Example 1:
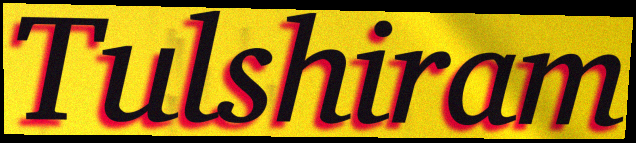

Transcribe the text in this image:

Tulshiram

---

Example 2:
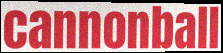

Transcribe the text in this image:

cannonball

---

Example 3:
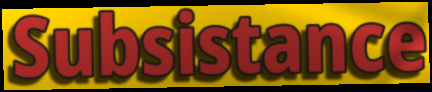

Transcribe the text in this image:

Subsistance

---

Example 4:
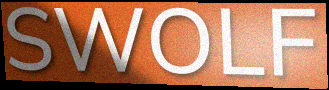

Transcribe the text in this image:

SWOLF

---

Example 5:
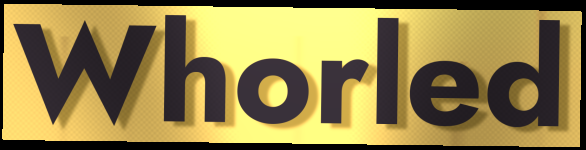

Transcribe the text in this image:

Whorled